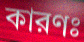
কারণঃ